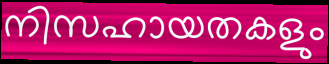
നിസഹായതകളും